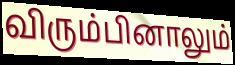
விரும்பினாலும்